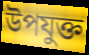
উপযুক্ত